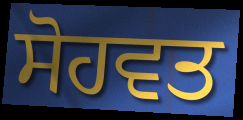
ਸੋਹਵਤ